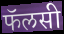
फॅलसी